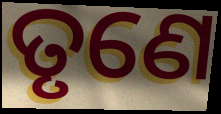
ତୃଣେ